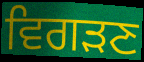
ਵਿਗੜਣ